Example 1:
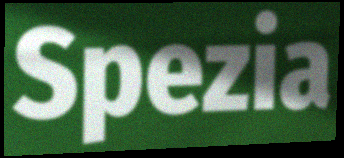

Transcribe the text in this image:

Spezia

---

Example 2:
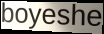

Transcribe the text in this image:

boyeshe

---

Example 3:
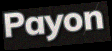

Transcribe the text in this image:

Payon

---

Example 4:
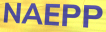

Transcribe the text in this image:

NAEPP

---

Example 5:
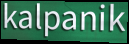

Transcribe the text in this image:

kalpanik